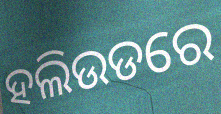
ହଲିଉଡରେ